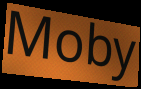
Moby